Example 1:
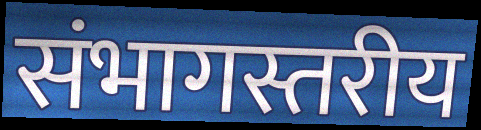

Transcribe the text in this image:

संभागस्तरीय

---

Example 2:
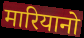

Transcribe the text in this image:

मारियानो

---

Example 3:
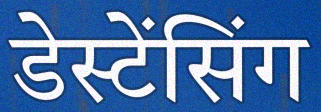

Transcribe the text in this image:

डेस्टेंसिंग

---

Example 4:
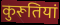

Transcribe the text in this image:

कुरूतियां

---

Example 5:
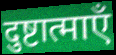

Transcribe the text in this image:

दुष्टात्माएँ